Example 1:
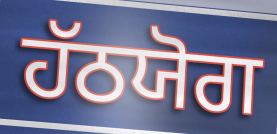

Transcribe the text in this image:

ਹੱਠਯੋਗ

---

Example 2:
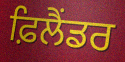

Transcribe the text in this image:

ਫ਼ਿਲੈਂਡਰ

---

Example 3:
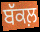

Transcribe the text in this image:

ਬੱਕਲ਼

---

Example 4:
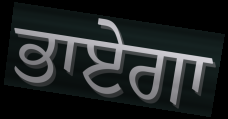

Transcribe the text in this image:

ਭਾਏਗਾ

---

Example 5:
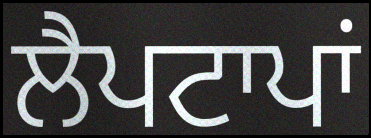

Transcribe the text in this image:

ਲੈਪਟਾਪਾਂ